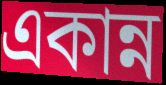
একান্ন